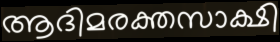
ആദിമരക്തസാക്ഷി